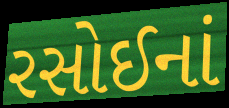
રસોઈનાં